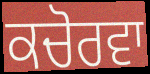
ਕਚੋਰਵਾ